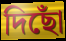
দিছোঁ